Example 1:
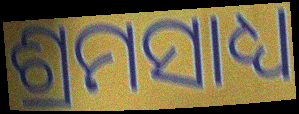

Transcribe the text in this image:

ଶ୍ରମସାଧ୍ୟ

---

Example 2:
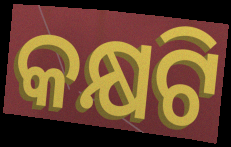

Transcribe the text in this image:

କକ୍ଷଟି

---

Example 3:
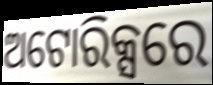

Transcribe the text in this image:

ଅଟୋରିକ୍ସରେ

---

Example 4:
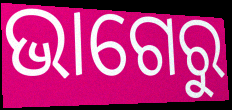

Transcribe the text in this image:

ଭାଗେରୁ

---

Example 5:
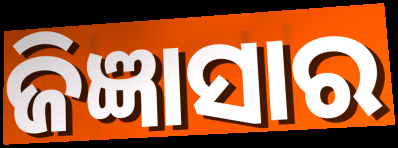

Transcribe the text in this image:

ଜିଜ୍ଞାସାର